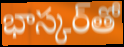
భాస్కర్‌తో